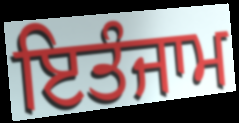
ਇਤੰਜਾਮ